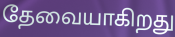
தேவையாகிறது